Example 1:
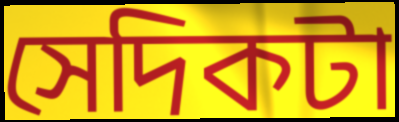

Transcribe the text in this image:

সেদিকটা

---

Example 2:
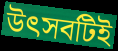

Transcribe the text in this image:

উৎসবটিই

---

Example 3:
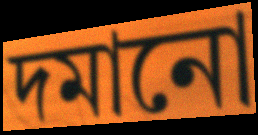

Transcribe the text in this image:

দমানো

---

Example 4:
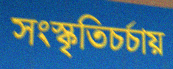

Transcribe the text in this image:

সংস্কৃতিচর্চায়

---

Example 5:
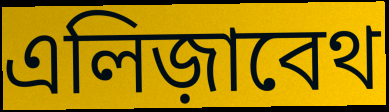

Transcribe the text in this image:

এলিজ়াবেথ